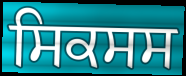
ਸਿਕਸਸ